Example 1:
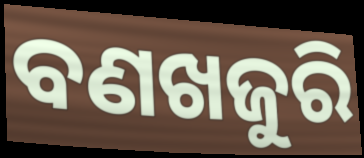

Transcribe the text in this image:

ବଣଖଜୁରି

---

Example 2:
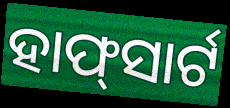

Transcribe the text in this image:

ହାଫ୍‍ସାର୍ଟ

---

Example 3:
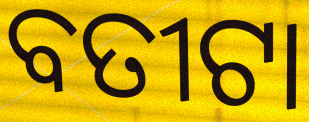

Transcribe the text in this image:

ବତୀଟା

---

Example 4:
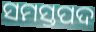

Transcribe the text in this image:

ସମସ୍ତପଦ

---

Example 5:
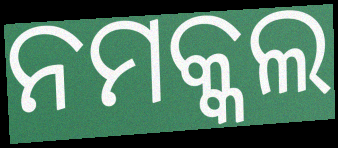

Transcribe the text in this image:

ନମକ୍କଲ